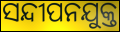
ସନ୍ଦୀପନଯୁକ୍ତ